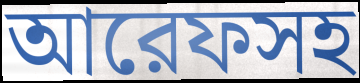
আরেফসহ